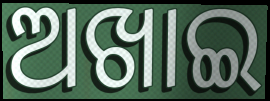
ଅଖାଇ